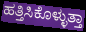
ಹತ್ತಿಸಿಕೊಳ್ಳುತ್ತಾ